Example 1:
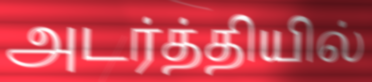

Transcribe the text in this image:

அடர்த்தியில்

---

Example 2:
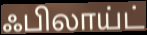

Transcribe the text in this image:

ஃபிலாய்ட்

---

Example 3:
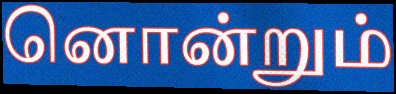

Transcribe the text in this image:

னொன்றும்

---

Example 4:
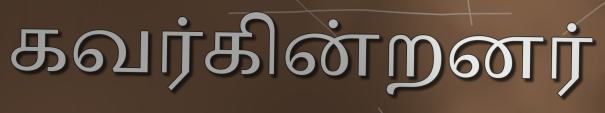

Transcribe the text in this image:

கவர்கின்றனர்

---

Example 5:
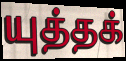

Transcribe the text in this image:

யுத்தக்